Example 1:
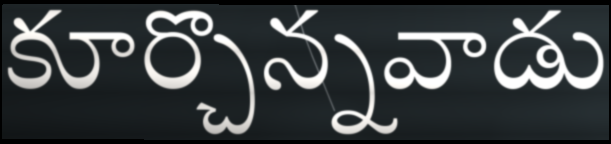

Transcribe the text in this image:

కూర్చొన్నవాడు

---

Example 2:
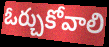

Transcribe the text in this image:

ఓర్చుకోవాలి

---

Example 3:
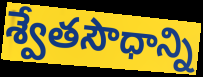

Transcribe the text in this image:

శ్వేతసౌధాన్ని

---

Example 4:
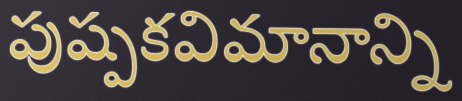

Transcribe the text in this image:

పుష్పకవిమానాన్ని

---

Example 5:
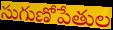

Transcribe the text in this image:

సుగుణోపేతుల